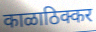
काळाठिक्कर